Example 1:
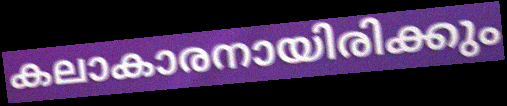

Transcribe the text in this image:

കലാകാരനായിരിക്കും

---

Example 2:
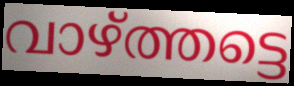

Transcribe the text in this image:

വാഴ്ത്തട്ടെ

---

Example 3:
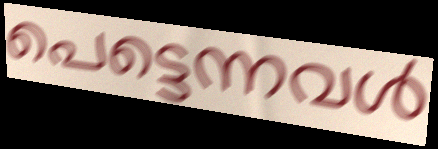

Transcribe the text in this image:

പെട്ടെന്നവൾ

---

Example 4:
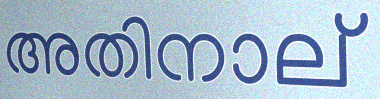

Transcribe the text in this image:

അതിനാല്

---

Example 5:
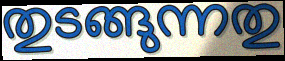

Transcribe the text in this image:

തുടങ്ങുന്നതു